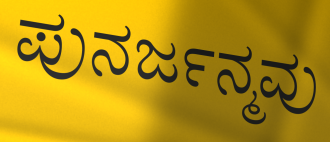
ಪುನರ್ಜನ್ಮವು